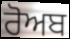
ਰੋਅਬ